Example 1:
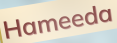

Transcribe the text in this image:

Hameeda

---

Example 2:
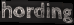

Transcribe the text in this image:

hording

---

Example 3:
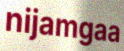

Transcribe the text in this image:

nijamgaa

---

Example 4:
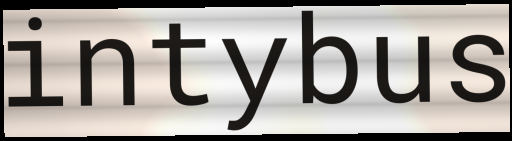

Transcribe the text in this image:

intybus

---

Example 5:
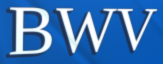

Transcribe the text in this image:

BWV